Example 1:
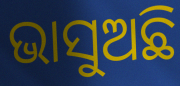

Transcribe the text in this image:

ଭାସୁଅଛି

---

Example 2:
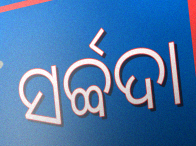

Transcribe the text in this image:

ସର୍ବ୍ବଦା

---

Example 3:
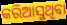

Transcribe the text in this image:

କରିଆସୁଥିବା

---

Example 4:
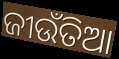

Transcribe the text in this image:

ଜୀଉଁତିଆ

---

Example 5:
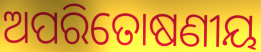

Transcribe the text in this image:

ଅପରିତୋଷଣୀୟ